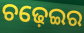
ଚଢ଼େଇର